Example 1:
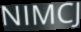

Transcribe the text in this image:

NIMCJ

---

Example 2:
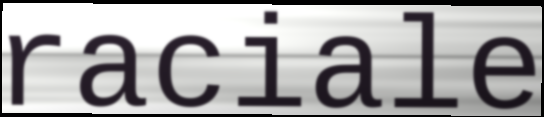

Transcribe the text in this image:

raciale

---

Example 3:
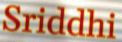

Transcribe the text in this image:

Sriddhi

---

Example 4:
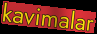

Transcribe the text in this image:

kavimalar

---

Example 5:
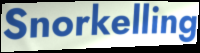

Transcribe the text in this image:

Snorkelling